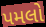
પમલો